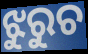
ଝୁରୁଚ